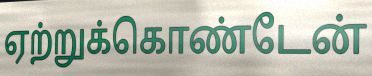
ஏற்றுக்கொண்டேன்